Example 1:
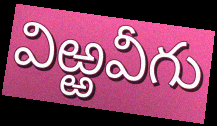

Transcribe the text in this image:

విఱ్ఱవీగు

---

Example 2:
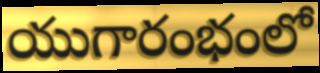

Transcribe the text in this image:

యుగారంభంలో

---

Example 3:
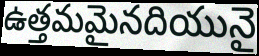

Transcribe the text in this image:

ఉత్తమమైనదియునై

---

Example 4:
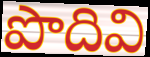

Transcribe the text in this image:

పొదివి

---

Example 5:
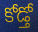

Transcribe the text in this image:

కోడ్తో